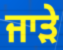
ਜਾੜੇ